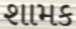
શામક